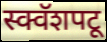
स्क्वॅशपटू